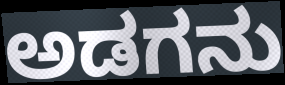
ಅಡಗನು